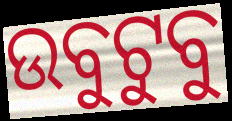
ଉବୁଟୁବୁ